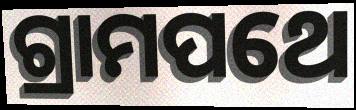
ଗ୍ରାମପଥେ